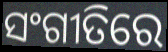
ସଂଗୀତିରେ